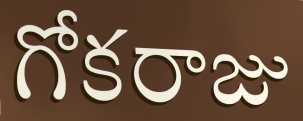
గోకరాజు